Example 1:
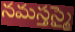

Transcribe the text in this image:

నమస్తస్మై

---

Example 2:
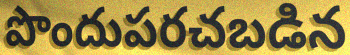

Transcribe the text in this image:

పొందుపరచబడిన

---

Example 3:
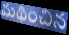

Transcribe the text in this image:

మథించిన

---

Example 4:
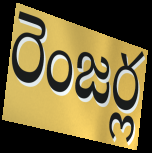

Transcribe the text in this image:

రెంజర్ల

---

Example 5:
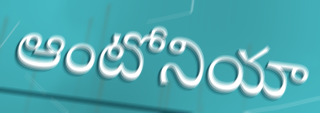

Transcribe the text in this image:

ఆంటోనియా